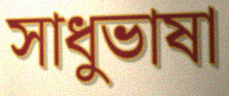
সাধুভাষা